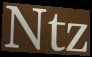
Ntz